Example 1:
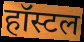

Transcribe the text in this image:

हॉस्टल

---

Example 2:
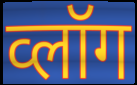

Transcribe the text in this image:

व्लॉग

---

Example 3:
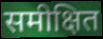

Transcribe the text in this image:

समीक्षित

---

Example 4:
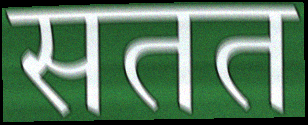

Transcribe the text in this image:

सतत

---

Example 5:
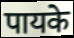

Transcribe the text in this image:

पायके